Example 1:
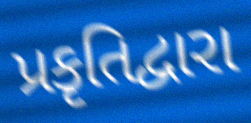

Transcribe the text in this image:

પ્રકૃતિદ્વારા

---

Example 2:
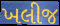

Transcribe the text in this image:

ખલીજ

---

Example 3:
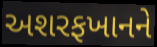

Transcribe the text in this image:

અશરફખાનને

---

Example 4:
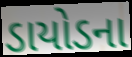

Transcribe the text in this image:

ડાયોડના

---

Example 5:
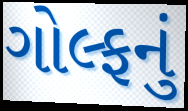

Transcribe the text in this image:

ગોલ્ફનું